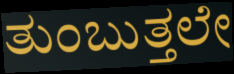
ತುಂಬುತ್ತಲೇ